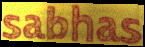
sabhas